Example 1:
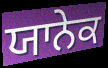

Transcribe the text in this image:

ਯਾਨੇਕ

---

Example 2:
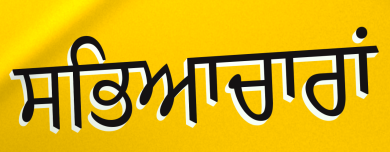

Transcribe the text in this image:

ਸਭਿਆਚਾਰਾਂ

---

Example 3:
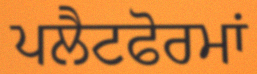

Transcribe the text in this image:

ਪਲੈਟਫੋਰਮਾਂ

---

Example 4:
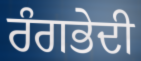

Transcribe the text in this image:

ਰੰਗਭੇਦੀ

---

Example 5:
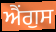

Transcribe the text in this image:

ਐਂਗੁਸ